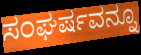
ಸಂಘರ್ಷವನ್ನೂ